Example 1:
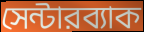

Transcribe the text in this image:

সেন্টারব্যাক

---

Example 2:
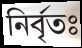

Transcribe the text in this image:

নির্বৃতঃ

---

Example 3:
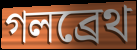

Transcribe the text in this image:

গলব্রেথ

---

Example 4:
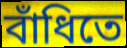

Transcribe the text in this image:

বাঁধিতে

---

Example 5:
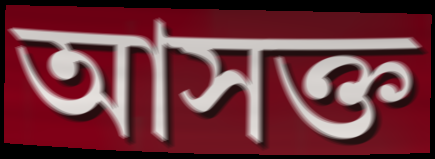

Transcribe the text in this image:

আসক্ত